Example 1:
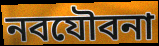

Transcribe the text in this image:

নবযৌবনা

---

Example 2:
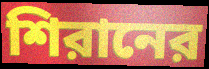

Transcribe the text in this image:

শিরানের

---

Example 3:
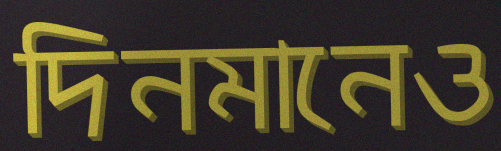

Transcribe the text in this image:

দিনমানেও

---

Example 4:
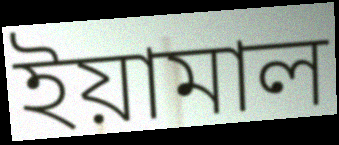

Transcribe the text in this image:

ইয়ামাল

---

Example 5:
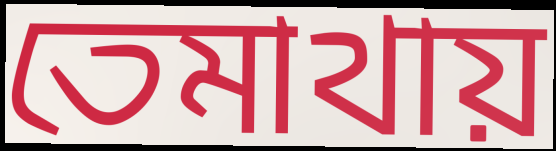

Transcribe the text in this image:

তেমাথায়